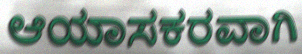
ಆಯಾಸಕರವಾಗಿ